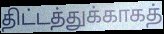
திட்டத்துக்காகத்